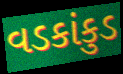
વડકાંકુડ